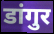
डांगुर